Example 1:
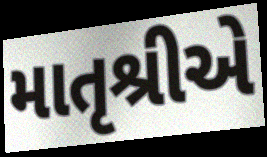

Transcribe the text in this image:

માતૃશ્રીએ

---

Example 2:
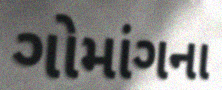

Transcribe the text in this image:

ગોમાંગના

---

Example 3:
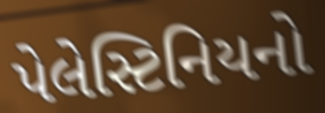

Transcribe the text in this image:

પેલેસ્ટિનિયનો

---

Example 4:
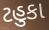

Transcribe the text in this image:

ટહુકા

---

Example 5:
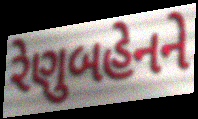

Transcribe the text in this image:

રેણુબહેનને